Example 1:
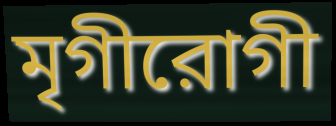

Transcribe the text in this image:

মৃগীরোগী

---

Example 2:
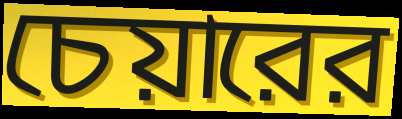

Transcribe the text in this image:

চেয়ারের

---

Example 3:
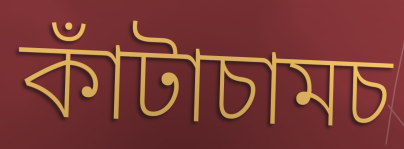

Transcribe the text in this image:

কাঁটাচামচ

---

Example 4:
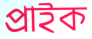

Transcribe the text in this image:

প্রাইক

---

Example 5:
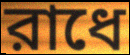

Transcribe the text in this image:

রাধে